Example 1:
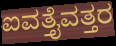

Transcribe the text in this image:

ಐವತ್ತೈವತ್ತರ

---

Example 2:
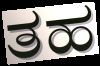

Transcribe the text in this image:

ತಹ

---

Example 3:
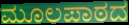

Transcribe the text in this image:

ಮೂಲಪಾಠದ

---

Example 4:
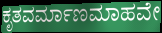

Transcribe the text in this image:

ಕೃತವರ್ಮಾಣಮಾಹವೇ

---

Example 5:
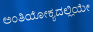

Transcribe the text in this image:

ಅಂತಿಯೋಕ್ಯದಲ್ಲಿಯೇ